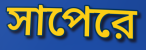
সাপেরে